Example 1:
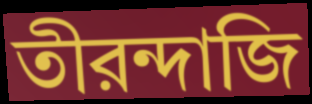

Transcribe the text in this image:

তীরন্দাজি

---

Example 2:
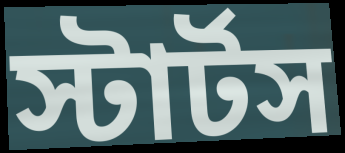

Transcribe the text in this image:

স্টার্টস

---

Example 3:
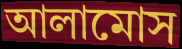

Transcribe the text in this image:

আলামোস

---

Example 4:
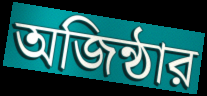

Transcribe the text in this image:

অজিন্ঠার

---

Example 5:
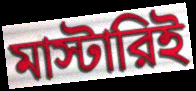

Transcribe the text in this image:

মাস্টারিই